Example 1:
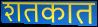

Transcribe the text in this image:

शतकात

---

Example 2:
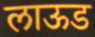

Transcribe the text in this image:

लाऊड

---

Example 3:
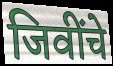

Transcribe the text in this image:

जिवींचे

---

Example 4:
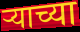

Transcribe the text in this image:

ऱ्याच्या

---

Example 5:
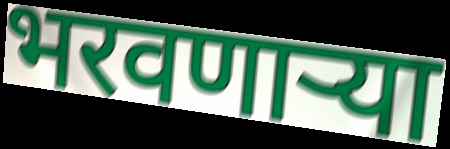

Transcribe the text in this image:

भरवणाऱ्या